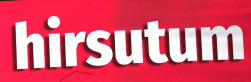
hirsutum